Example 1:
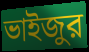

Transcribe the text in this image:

ভাইজুর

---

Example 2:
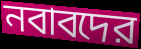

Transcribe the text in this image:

নবাবদের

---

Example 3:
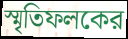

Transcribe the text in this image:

স্মৃতিফলকের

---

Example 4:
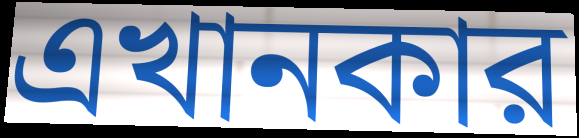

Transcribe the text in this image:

এখানকার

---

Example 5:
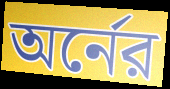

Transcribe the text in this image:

অর্নের